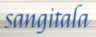
sangitala